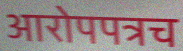
आरोपपत्रच